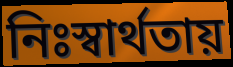
নিঃস্বার্থতায়